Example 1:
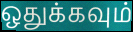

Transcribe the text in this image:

ஒதுக்கவும்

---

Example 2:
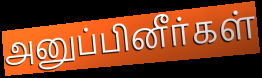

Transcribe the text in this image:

அனுப்பினீர்கள்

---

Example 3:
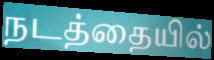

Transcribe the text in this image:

நடத்தையில்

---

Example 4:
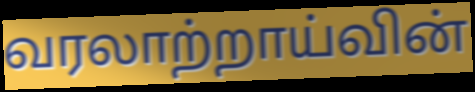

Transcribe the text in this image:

வரலாற்றாய்வின்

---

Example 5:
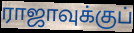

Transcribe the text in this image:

ராஜாவுக்குப்